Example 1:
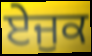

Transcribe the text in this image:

ਏਜੁਕ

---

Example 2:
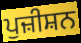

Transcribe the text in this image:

ਪੁਜ਼ੀਸ਼ਨ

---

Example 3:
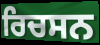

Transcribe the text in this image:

ਰਿਚਸਨ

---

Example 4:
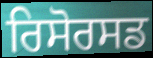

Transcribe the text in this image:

ਰਿਸੋਰਸਡ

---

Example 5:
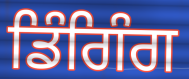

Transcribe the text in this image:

ਡਿੰਗਿੰਗ